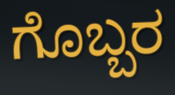
ಗೊಬ್ಬರ